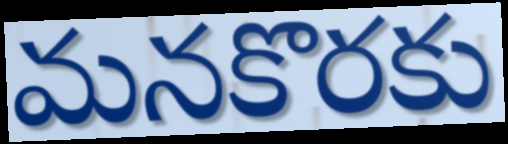
మనకొరకు